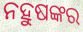
ନହୁଷଙ୍କର